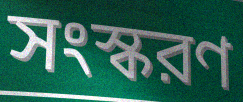
সংস্করণ